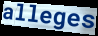
alleges